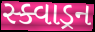
સ્ક્વાડ્રન